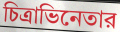
চিত্রাভিনেতার